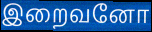
இறைவனோ